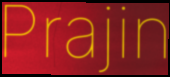
Prajin